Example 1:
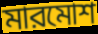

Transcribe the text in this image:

মারমোশ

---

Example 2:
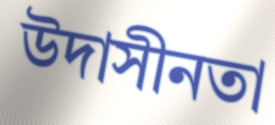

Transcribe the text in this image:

উদাসীনতা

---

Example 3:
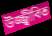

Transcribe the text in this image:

উজ্জ্বীবিত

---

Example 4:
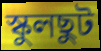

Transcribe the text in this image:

স্কুলছুট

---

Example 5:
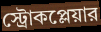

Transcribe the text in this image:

স্ট্রোকপ্লেয়ার